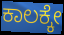
ಕಾಲಕ್ಕೇ